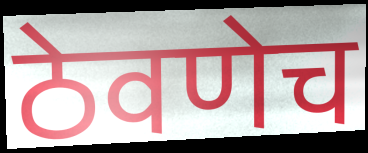
ठेवणेच